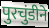
पुरचुंडीने